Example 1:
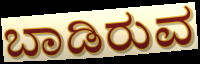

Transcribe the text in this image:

ಬಾಡಿರುವ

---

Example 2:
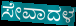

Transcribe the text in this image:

ಸೇವಾದಳ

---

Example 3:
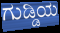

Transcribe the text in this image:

ಗುಡ್ಡಿಯ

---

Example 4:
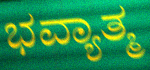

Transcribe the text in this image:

ಭವ್ಯಾತ್ಮ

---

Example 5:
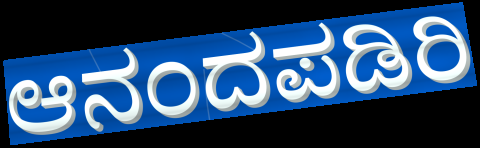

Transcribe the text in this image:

ಆನಂದಪಡಿರಿ